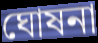
ঘোষনা